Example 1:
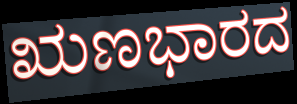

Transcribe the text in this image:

ಋಣಭಾರದ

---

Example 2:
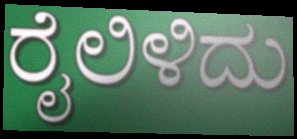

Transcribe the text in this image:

ರೈಲಿಳಿದು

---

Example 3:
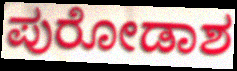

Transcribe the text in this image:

ಪುರೋಡಾಶ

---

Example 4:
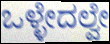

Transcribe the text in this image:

ಒಳ್ಳೇದಲ್ವೇ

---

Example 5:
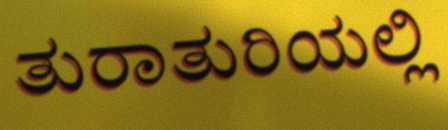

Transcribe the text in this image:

ತುರಾತುರಿಯಲ್ಲಿ